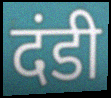
दंडी